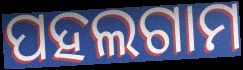
ପହଲଗାମ